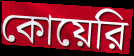
কোয়েরি